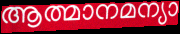
ആത്മാനമന്യാ